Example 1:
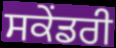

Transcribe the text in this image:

ਸਕੇਂਡਰੀ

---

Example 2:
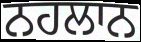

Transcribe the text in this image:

ਨਹਲਾਨ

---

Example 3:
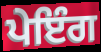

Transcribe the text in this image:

ਪੇਇੰਗ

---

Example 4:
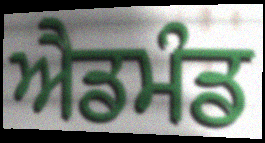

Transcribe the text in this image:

ਐਡਮੰਡ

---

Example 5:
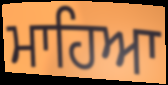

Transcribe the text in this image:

ਮਾਹਿਆ